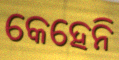
କେହେନି